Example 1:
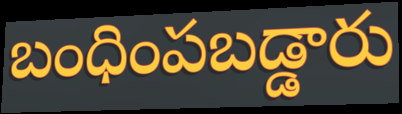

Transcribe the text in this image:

బంధింపబడ్డారు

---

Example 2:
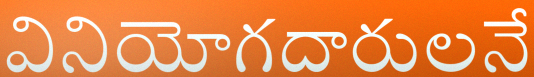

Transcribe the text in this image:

వినియోగదారులనే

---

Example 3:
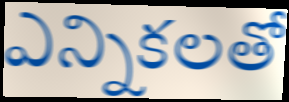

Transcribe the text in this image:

ఎన్నికలతో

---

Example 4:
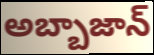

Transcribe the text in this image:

అబ్బాజాన్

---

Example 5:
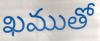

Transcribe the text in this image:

ఖముతో